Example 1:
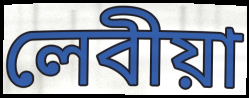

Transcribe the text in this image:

লেবীয়া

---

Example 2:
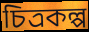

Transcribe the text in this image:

চিত্ৰকল্প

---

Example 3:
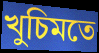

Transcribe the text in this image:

খুচিমতে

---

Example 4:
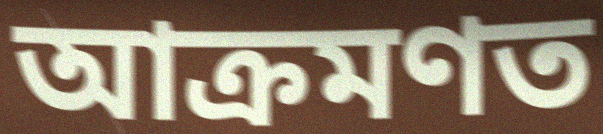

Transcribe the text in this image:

আক্ৰমণত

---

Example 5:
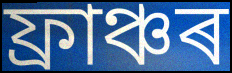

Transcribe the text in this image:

ফ্ৰাঞ্চৰ